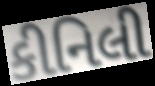
કીનિલી